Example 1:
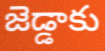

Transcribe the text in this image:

జెడ్డాకు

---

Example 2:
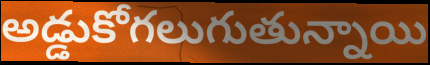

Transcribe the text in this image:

అడ్డుకోగలుగుతున్నాయి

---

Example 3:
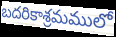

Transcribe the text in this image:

బదరికాశ్రమములో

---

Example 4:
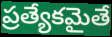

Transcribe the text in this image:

ప్రత్యేకమైతే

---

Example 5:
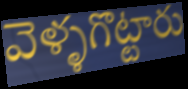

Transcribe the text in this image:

వెళ్ళగొట్టారు